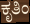
ಕೃತಿಂ